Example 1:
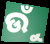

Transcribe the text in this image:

ଉୁଁ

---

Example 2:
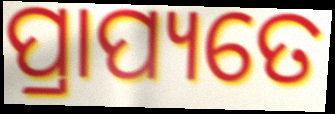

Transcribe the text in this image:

ପ୍ରାପ୍ୟତେ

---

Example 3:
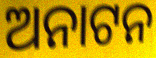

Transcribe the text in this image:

ଅନାଟନ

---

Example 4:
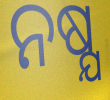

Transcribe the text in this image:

ନଷ୍ଯ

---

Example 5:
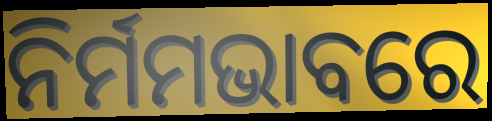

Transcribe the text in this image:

ନିର୍ମମଭାବରେ